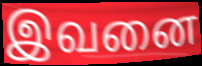
இவனை